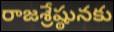
రాజశ్రేష్ఠునకు